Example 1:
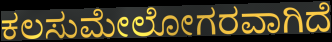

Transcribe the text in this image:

ಕಲಸುಮೇಲೋಗರವಾಗಿದೆ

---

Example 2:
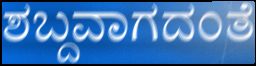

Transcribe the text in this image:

ಶಬ್ದವಾಗದಂತೆ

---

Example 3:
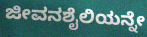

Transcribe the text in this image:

ಜೀವನಶೈಲಿಯನ್ನೇ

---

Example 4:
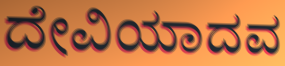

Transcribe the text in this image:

ದೇವಿಯಾದವ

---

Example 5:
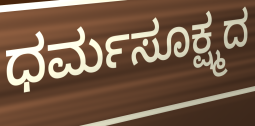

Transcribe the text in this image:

ಧರ್ಮಸೂಕ್ಷ್ಮದ